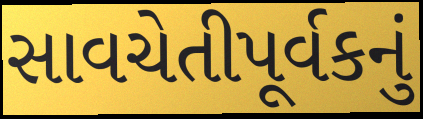
સાવચેતીપૂર્વકનું